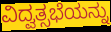
ವಿದ್ವತ್ಸಭೆಯನ್ನು